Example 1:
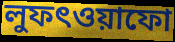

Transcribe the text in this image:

লুফৎওয়াফো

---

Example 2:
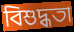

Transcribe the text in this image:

বিশুদ্ধতা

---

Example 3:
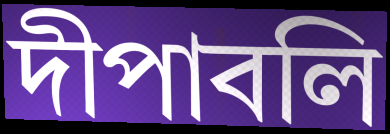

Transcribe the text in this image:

দীপাবলি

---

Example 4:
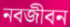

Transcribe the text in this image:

নবজীবন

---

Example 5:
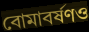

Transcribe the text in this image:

বোমাবর্ষণও